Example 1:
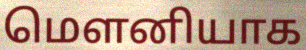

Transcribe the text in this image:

மெளனியாக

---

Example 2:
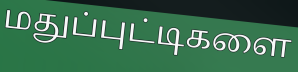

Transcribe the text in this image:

மதுப்புட்டிகளை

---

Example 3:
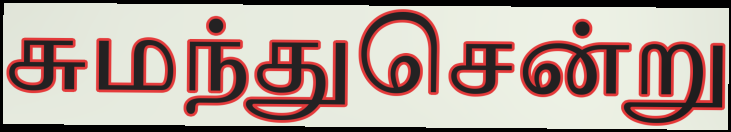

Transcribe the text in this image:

சுமந்துசென்று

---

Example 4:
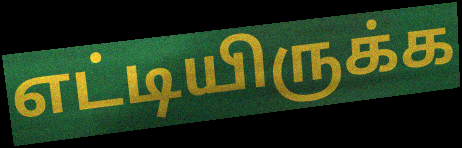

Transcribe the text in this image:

எட்டியிருக்க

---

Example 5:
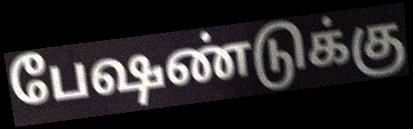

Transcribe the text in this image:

பேஷண்டுக்கு